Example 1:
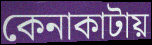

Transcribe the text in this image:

কেনাকাটায়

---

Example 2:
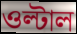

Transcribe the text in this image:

ওল্টাল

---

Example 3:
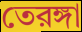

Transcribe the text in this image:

তেরঙ্গা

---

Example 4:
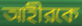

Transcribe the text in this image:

আহীরকে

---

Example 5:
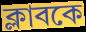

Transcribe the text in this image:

ক্লাবকে